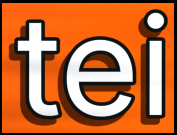
tei